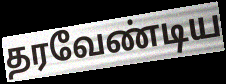
தரவேண்டிய